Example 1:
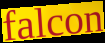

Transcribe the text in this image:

falcon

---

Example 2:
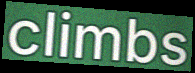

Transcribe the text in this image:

climbs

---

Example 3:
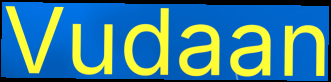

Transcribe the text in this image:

Vudaan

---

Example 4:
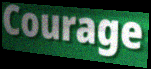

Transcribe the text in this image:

Courage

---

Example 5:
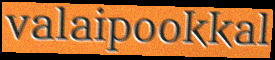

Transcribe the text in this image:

valaipookkal